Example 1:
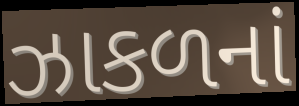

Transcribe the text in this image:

ઝાકળનાં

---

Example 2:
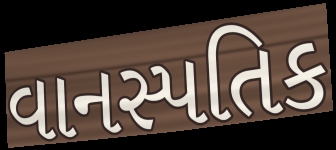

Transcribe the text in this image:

વાનસ્પતિક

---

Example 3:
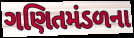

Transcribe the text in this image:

ગણિતમંડળના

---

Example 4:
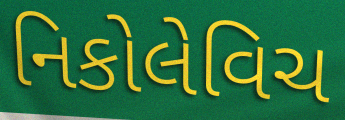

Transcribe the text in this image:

નિકોલેવિચ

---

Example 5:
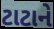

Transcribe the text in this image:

ટાટાને